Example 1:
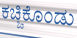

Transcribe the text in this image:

ಕಚ್ಚಿಕೊಂಡು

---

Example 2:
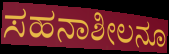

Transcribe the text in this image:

ಸಹನಾಶೀಲನೂ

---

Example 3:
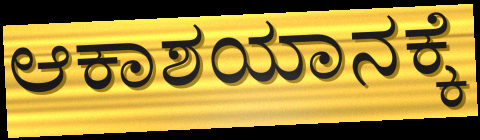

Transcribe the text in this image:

ಆಕಾಶಯಾನಕ್ಕೆ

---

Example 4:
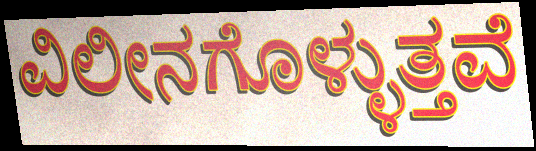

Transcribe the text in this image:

ವಿಲೀನಗೊಳ್ಳುತ್ತವೆ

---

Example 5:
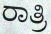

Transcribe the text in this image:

ರಾತ್ರಿ